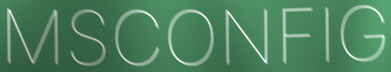
MSCONFIG